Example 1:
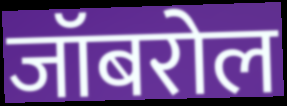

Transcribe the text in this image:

जॉबरोल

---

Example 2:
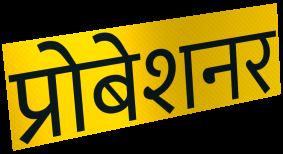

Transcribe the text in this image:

प्रोबेशनर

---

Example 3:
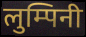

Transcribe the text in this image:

लुम्पिनी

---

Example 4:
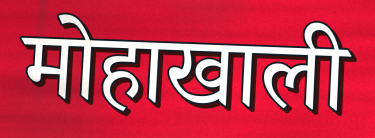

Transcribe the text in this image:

मोहाखाली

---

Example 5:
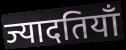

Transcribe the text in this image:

ज्यादतियाँ